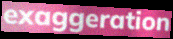
exaggeration